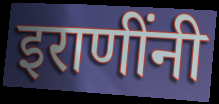
इराणींनी